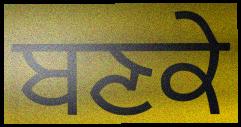
ਬਣਕੇ